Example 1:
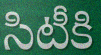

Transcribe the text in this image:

సిటీకి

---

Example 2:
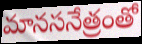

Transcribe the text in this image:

మానసనేత్రంతో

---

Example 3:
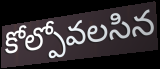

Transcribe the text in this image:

కోల్పోవలసిన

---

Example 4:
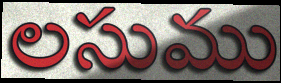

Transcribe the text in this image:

లసుము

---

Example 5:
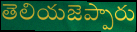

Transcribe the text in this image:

తెలియజెప్పారు